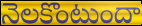
నెలకొంటుందా